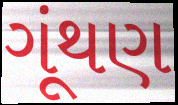
ગૂંથણ